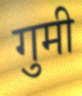
गुमी